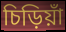
চিড়িয়াঁ